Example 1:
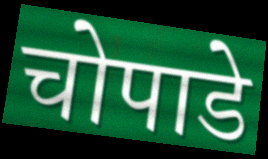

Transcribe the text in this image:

चोपाडे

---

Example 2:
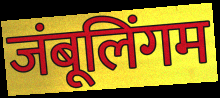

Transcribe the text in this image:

जंबूलिंगम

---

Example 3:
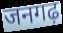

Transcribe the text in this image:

जनगढ़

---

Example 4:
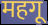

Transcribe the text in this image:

महगू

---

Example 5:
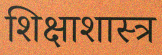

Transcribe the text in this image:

शिक्षाशास्त्र